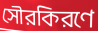
সৌরকিরণে